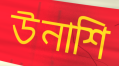
উনাশি